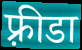
फ़्रीडा